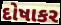
દોષાકર